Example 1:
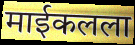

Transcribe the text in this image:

माईकलला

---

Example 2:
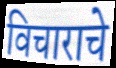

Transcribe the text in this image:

विचाराचे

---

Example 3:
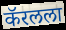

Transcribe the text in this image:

कॅरलला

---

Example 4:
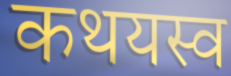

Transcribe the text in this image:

कथयस्व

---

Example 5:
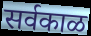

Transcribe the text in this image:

सर्वकाळ